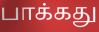
பாக்கது